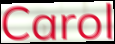
Carol